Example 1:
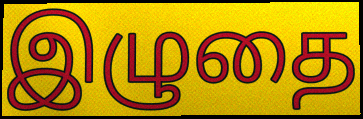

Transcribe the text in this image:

இழுதை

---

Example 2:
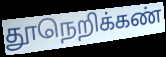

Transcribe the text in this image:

தூநெறிக்கண்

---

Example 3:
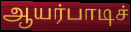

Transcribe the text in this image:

ஆயர்பாடிச்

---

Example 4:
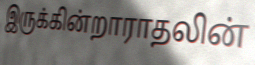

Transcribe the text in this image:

இருக்கின்றாராதலின்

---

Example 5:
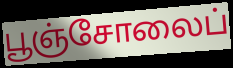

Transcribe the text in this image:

பூஞ்சோலைப்